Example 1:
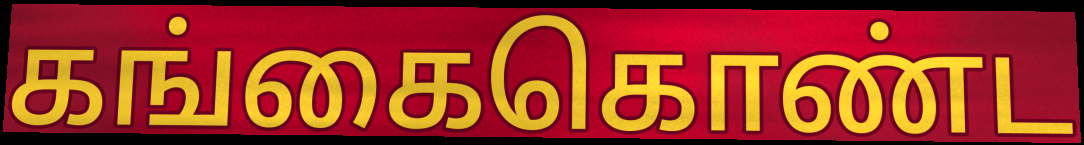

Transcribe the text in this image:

கங்கைகொண்ட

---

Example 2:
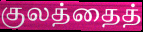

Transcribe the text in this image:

குலத்தைத்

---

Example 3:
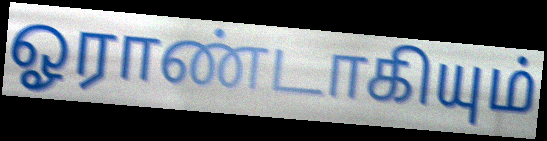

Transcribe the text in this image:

ஓராண்டாகியும்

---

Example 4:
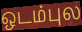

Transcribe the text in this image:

ஒடம்புல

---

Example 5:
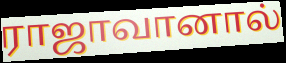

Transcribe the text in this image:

ராஜாவானால்